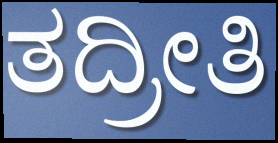
ತದ್ರೀತಿ